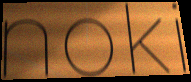
noki